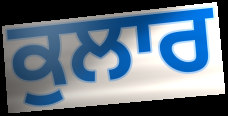
ਕੁਲਾਰ